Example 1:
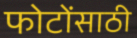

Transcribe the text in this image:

फोटोंसाठी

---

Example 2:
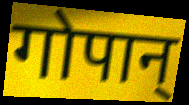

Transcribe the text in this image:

गोपान्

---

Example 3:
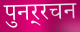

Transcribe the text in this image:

पुनर्रचन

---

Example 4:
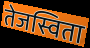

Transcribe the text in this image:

तेजस्विता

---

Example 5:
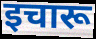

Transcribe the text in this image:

इचारू